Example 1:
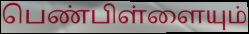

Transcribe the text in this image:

பெண்பிள்ளையும்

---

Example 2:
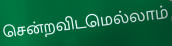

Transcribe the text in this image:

சென்றவிடமெல்லாம்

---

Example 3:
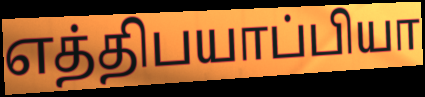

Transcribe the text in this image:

எத்திபயாப்பியா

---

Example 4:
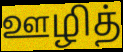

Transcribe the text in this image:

ஊழித்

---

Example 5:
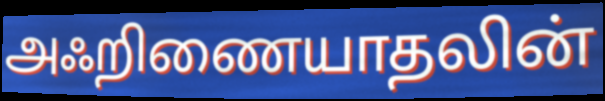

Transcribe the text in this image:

அஃறிணையாதலின்